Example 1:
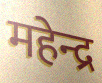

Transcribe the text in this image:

महेन्‍द्र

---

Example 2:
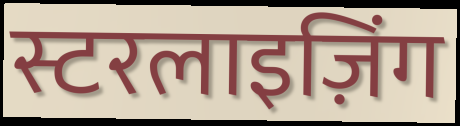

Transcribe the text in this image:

स्टरलाइज़िंग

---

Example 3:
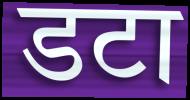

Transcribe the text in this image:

डटा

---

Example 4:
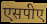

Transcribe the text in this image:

एसपीए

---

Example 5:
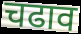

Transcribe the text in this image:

चढाव